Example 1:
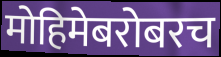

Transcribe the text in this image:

मोहिमेबरोबरच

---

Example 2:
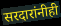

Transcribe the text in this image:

सरदारांनीही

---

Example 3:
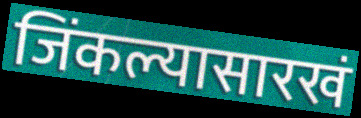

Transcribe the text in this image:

जिंकल्यासारखं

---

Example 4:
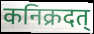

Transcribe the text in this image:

कनिक्रदत्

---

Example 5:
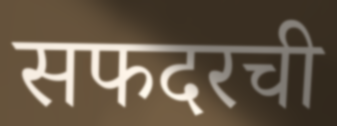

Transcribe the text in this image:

सफदरची